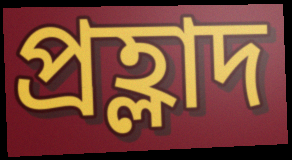
প্ৰহ্লাদ